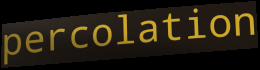
percolation